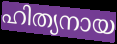
ഹിത്യനായ